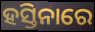
ହସ୍ତିନାରେ